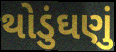
થોડુંઘણું